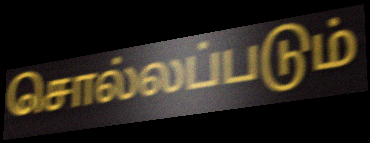
சொல்லப்படும்